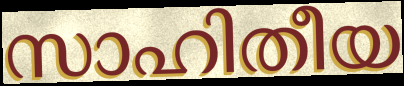
സാഹിതീയ